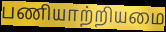
பணியாற்றியமை